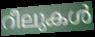
റീലുകൾ